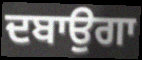
ਦਬਾਉਗਾ